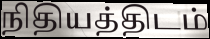
நிதியத்திடம்